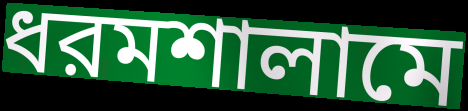
ধরমশালামে